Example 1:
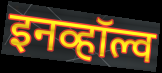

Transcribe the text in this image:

इनव्हॉल्व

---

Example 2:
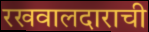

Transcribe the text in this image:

रखवालदाराची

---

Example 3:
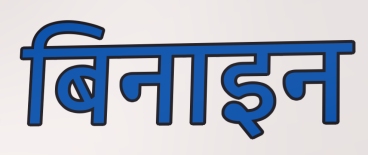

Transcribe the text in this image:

बिनाइन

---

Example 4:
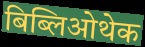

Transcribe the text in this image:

बिब्लिओथेक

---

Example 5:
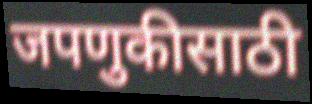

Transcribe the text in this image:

जपणुकीसाठी